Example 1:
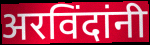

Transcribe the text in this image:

अरविंदांनी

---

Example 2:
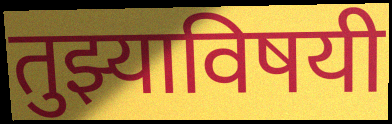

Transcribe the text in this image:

तुझ्याविषयी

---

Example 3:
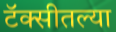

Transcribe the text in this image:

टॅक्सीतल्या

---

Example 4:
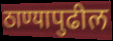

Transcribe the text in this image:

ठाण्यापुढील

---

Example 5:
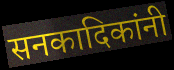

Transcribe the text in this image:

सनकादिकांनी